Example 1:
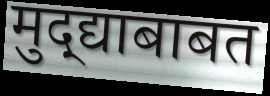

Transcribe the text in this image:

मुद्द्याबाबत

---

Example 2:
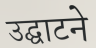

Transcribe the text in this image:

उद्घाटने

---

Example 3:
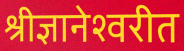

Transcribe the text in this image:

श्रीज्ञानेश्वरीत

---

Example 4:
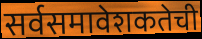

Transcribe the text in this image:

सर्वसमावेशकतेची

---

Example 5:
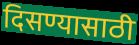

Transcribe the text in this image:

दिसण्यासाठी